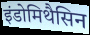
इंडोमिथैसिन